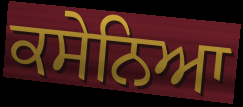
ਕਸੇਨਿਆ